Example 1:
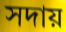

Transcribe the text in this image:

সদায়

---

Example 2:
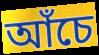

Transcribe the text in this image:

আঁচে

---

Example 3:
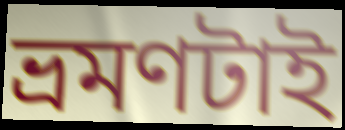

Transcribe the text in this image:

ভ্রমণটাই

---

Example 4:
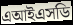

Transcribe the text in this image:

এআইএসডি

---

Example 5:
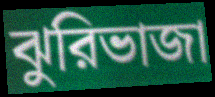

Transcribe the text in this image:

ঝুরিভাজা